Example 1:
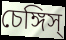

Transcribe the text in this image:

চেঙ্গিস্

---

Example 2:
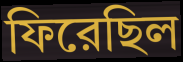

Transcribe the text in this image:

ফিরেছিল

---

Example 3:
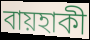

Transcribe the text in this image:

বায়হাকী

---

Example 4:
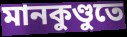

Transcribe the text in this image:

মানকুণ্ডুতে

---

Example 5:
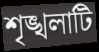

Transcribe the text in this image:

শৃঙ্খলাটি